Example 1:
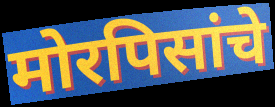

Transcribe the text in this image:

मोरपिसांचे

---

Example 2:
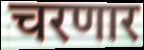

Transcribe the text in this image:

चरणार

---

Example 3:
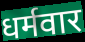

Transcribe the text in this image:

धर्मवार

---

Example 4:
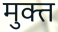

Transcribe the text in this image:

मुक्त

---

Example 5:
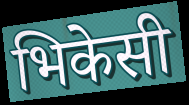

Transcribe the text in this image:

भिकेसी